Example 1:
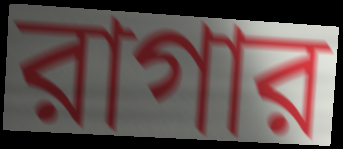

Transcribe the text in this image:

রাগার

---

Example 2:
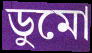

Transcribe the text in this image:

ডুমো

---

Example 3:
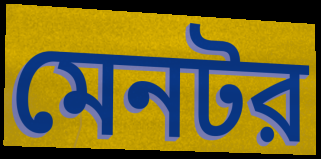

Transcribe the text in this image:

মেনটর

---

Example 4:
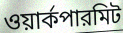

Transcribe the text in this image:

ওয়ার্কপারমিট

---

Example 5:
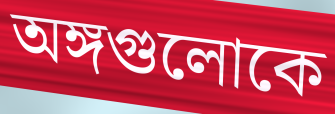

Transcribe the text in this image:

অঙ্গগুলোকে